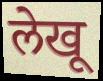
लेखू